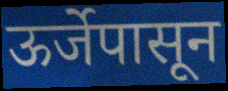
ऊर्जेपासून